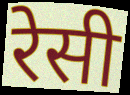
रेसी